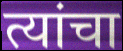
त्यांचा